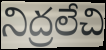
నిద్రలేచి